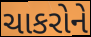
ચાકરોને